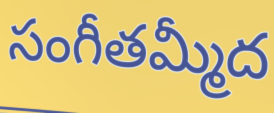
సంగీతమ్మీద